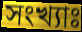
সংখ্যাঃ